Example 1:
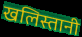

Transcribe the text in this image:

खलिस्तानी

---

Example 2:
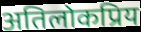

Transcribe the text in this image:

अतिलोकप्रिय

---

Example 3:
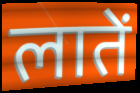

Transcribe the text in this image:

लातें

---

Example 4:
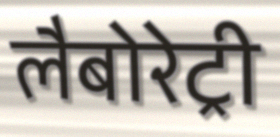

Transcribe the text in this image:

लैबोरेट्री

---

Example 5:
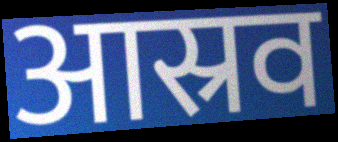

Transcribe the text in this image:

आस्रव